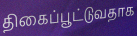
திகைப்பூட்டுவதாக